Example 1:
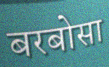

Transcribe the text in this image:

बरबोसा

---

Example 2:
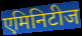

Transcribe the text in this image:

एमिनिटीज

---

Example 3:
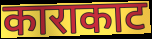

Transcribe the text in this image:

काराकाट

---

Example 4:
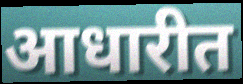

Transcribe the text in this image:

आधारीत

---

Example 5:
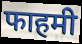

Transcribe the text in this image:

फाहमी